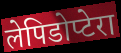
लेपिडोप्टेरा